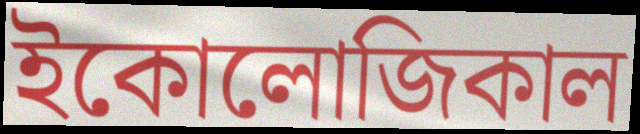
ইকোলোজিকাল